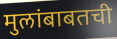
मुलांबाबतची